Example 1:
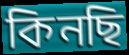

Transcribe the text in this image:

কিনছি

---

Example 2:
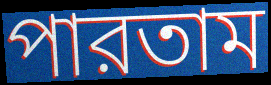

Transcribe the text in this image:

পারতাম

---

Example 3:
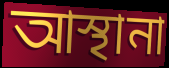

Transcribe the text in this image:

আস্থানা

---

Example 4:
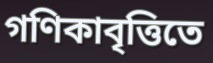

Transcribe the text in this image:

গণিকাবৃত্তিতে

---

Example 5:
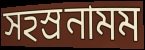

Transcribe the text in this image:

সহস্রনামম